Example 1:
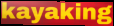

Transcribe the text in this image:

kayaking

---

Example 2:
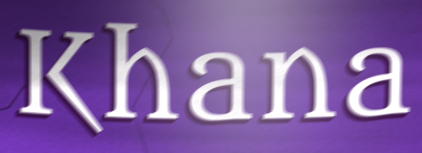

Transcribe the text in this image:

Khana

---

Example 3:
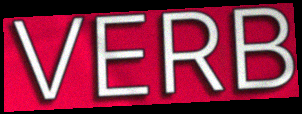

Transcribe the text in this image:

VERB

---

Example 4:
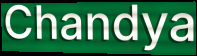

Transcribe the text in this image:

Chandya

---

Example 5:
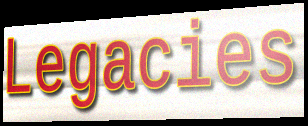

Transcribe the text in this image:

Legacies